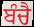
ਬੰਚੈ